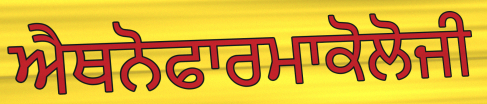
ਐਥਨੋਫਾਰਮਾਕੋਲੋਜੀ